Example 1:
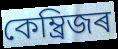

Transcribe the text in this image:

কেম্ব্ৰিজৰ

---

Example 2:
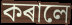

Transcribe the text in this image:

কৰালে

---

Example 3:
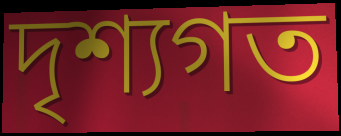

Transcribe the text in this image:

দৃশ্যগত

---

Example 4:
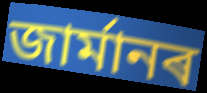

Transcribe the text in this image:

জাৰ্মানৰ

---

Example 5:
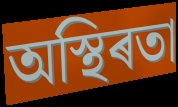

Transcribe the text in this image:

অস্থিৰতা